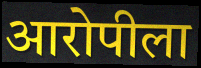
आरोपीला